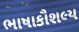
ભાષાકૌશલ્ય